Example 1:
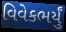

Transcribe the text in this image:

વિવેકભર્યું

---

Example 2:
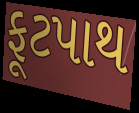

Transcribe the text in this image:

ફૂટપાથ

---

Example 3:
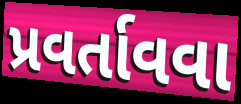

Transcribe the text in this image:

પ્રવર્તાવવા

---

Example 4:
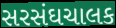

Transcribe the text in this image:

સરસંઘચાલક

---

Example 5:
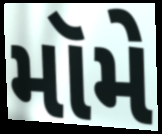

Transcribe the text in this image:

મૉમે